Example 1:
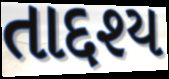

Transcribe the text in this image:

તાદ્દશ્ય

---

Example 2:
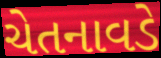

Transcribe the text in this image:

ચેતનાવડે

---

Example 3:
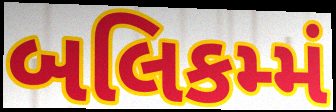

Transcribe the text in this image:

બલિકમ્મં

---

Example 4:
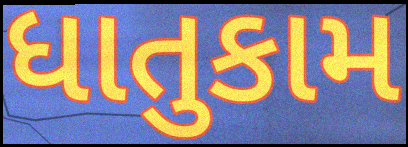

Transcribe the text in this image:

ધાતુકામ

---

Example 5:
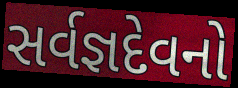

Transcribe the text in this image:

સર્વજ્ઞદેવનો